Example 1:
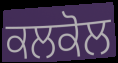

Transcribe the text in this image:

ਕਲਕੋਲ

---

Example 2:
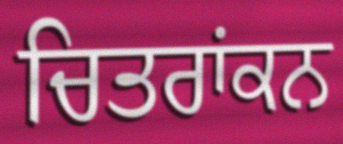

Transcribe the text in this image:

ਚਿਤਰਾਂਕਨ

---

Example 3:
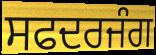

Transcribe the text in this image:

ਸਫਦਰਜੰਗ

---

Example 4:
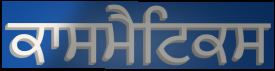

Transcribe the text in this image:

ਕਾਸਮੈਟਿਕਸ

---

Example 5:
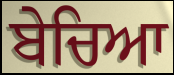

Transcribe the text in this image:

ਬੇਚਿਆ